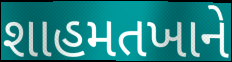
શાહમતખાને